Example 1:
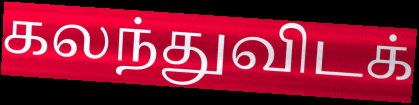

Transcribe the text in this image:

கலந்துவிடக்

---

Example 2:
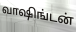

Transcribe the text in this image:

வாஷிங்டன்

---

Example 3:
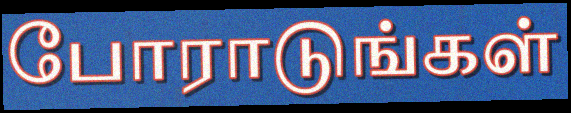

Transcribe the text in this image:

போராடுங்கள்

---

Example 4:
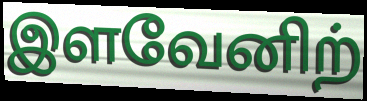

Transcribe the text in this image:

இளவேனிற்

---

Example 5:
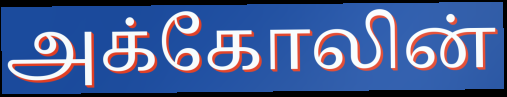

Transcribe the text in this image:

அக்கோலின்